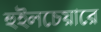
হুইলচেয়ারে